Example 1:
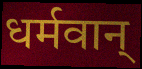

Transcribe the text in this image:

धर्मवान्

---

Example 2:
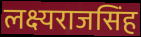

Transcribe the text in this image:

लक्ष्यराजसिंह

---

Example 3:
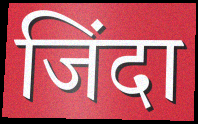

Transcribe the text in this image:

जिंदा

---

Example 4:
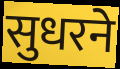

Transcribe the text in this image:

सुधरने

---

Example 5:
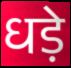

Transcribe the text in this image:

धड़े